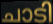
ചാടി